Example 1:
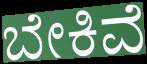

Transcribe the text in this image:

ಬೇಕಿವೆ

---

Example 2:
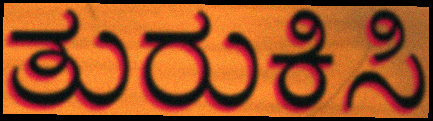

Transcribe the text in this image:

ತುರುಕಿಸಿ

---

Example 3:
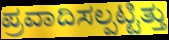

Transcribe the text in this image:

ಪ್ರವಾದಿಸಲ್ಪಟ್ಟಿತ್ತು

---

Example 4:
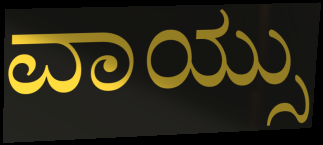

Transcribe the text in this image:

ವಾಯ್ಸು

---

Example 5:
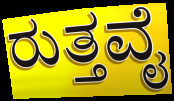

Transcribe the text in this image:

ರುತ್ತವೈ